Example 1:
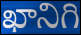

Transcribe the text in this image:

ఖానిగి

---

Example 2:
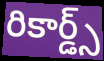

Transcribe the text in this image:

రికార్డ్స్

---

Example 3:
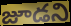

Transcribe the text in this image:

జూడని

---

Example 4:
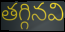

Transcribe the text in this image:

తగ్గినవి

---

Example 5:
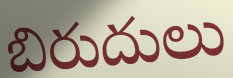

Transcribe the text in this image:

బిరుదులు